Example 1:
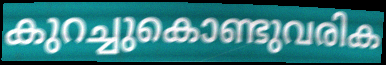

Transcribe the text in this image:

കുറച്ചുകൊണ്ടുവരിക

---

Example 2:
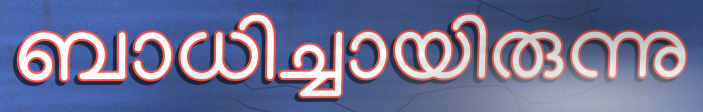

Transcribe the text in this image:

ബാധിച്ചായിരുന്നു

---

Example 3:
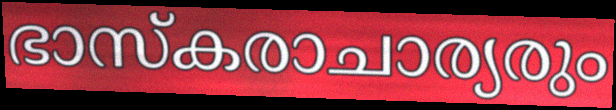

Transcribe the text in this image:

ഭാസ്കരാചാര്യരും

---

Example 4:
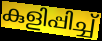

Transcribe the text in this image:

കുളിപ്പിച്ച്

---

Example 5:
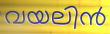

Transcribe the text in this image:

വയലിൻ